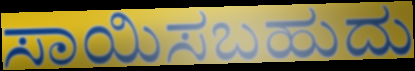
ಸಾಯಿಸಬಹುದು